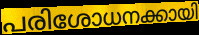
പരിശോധനക്കായി